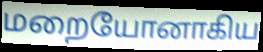
மறையோனாகிய